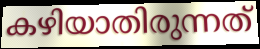
കഴിയാതിരുന്നത്